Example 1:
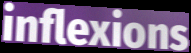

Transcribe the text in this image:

inflexions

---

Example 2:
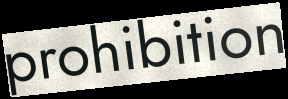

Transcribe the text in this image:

prohibition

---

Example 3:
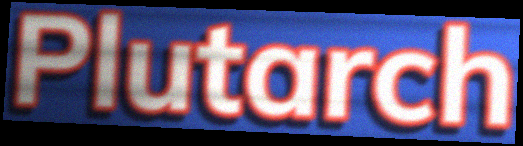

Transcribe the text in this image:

Plutarch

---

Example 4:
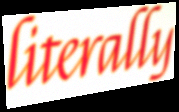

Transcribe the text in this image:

literally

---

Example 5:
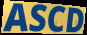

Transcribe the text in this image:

ASCD